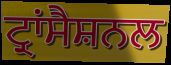
ਟ੍ਰਾਂਸੈਸ਼ਨਲ